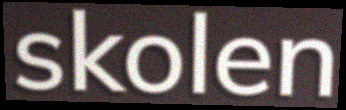
skolen